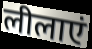
लीलाएं